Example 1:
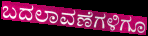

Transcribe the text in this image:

ಬದಲಾವಣೆಗಳಿಗೂ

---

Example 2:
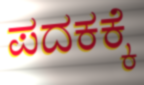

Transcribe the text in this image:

ಪದಕಕ್ಕೆ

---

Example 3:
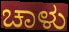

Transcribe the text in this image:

ಚಾಳು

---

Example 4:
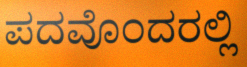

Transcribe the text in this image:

ಪದವೊಂದರಲ್ಲಿ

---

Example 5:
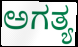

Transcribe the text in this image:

ಅಗತ್ಯ